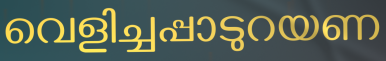
വെളിച്ചപ്പാടുറയണ